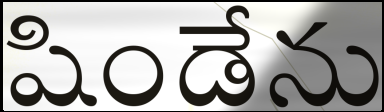
షిండేను